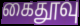
கைதூவு